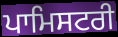
ਪਾਮਿਸਟਰੀ